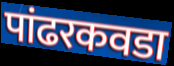
पांढरकवडा